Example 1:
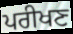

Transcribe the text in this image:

ਪਰੀਖਣ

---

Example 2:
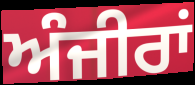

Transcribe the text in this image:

ਅੰਜੀਰਾਂ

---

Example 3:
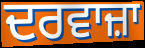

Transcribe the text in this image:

ਦਰਵਾਜ਼ਾ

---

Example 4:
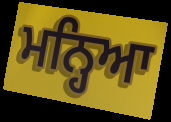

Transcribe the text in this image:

ਮਨ੍ਹਿਆ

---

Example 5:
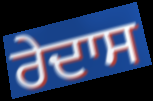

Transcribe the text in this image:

ਰੇਦਾਸ